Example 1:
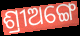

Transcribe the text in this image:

ଶ୍ରୀଅଙ୍ଗେ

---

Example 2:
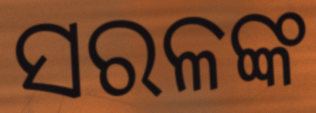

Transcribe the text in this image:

ସରଳଙ୍କ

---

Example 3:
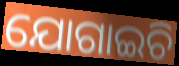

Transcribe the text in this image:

ଯୋଗାଇଚି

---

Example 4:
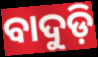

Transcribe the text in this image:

ବାଦୁଡ଼ି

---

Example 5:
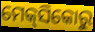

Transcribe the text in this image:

ମେକ୍‌ସିକୋରୁ